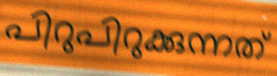
പിറുപിറുക്കുന്നത്